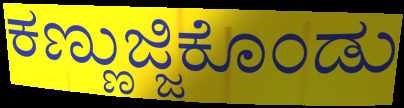
ಕಣ್ಣುಜ್ಜಿಕೊಂಡು